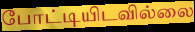
போட்டியிடவில்லை